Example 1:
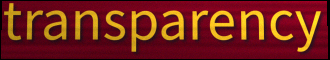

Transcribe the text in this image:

transparency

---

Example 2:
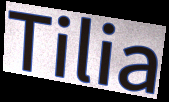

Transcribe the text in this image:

Tilia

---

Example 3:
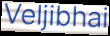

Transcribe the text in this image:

Veljibhai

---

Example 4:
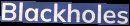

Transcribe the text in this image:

Blackholes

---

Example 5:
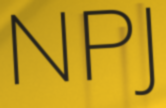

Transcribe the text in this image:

NPJ